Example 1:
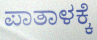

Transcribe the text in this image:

ಪಾತಾಳಕ್ಕೆ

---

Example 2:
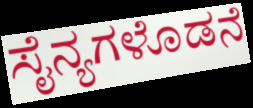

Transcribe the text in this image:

ಸೈನ್ಯಗಳೊಡನೆ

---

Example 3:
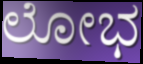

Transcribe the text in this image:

ಲೋಭ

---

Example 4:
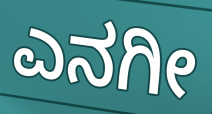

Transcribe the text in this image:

ಎನಗೀ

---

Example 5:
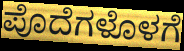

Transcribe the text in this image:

ಪೊದೆಗಳೊಳಗೆ